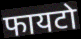
फायटो